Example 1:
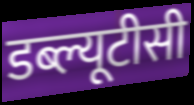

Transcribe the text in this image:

डब्ल्यूटीसी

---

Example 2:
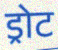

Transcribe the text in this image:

ड्रोट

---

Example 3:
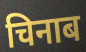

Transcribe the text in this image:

चिनाब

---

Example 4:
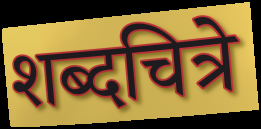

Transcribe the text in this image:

शब्दचित्रे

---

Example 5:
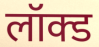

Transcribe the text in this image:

लॉक्ड